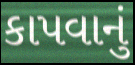
કાપવાનું